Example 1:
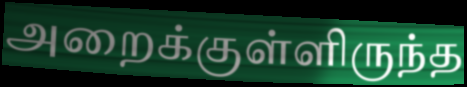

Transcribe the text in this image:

அறைக்குள்ளிருந்த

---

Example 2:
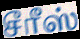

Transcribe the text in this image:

சீரீஸ்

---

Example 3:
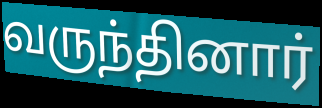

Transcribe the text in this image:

வருந்தினார்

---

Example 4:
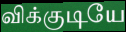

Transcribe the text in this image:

விக்குடியே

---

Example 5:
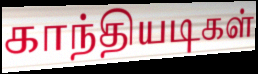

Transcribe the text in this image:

காந்தியடிகள்